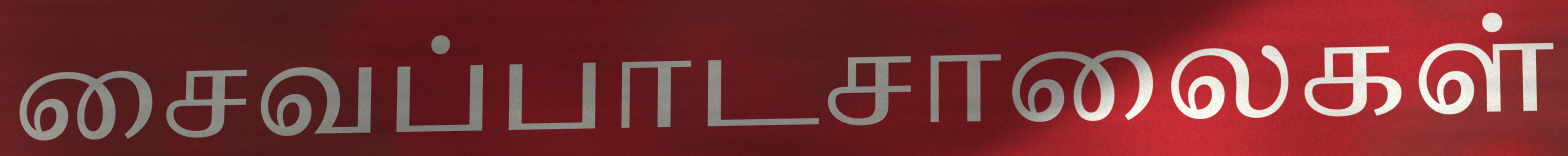
சைவப்பாடசாலைகள்